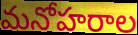
మనోహరాల